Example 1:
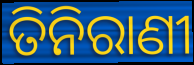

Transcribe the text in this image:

ତିନିରାଣୀ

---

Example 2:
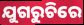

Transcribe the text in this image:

ଯୁଗରୁଚିରେ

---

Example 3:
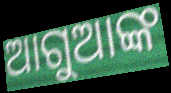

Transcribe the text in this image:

ଆଗୁଆଙ୍କ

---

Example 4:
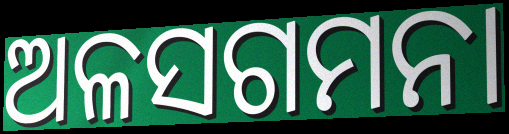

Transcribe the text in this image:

ଅଳସଗମନା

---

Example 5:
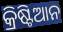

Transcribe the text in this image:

କ୍ରିଷ୍ଟିଆନ